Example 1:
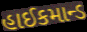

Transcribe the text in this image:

હાઈકમાન્ડ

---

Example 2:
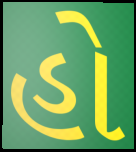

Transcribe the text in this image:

હો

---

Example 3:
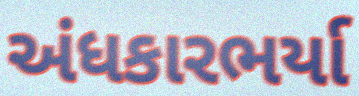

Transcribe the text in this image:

અંધકારભર્યા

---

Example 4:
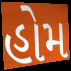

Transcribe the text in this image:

હોમ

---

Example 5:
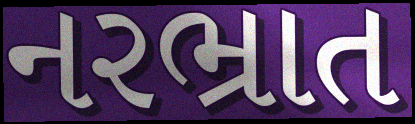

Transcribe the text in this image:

નરભ્રાત